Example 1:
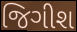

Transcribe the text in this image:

જિગીશ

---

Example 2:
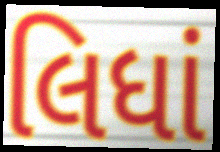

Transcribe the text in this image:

લિધાં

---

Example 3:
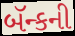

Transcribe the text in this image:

બૅન્કની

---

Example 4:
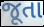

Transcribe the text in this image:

જૂતા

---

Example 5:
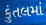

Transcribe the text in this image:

કુંતલમાં